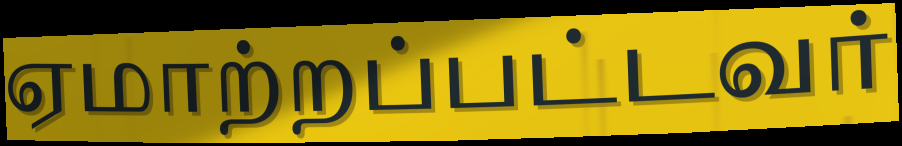
ஏமாற்றப்பட்டவர்